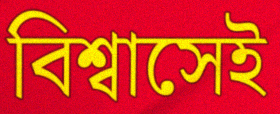
বিশ্বাসেই